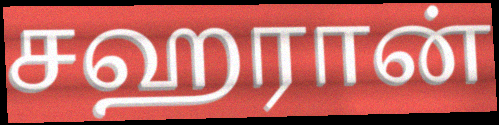
சஹரான்